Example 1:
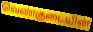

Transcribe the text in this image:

வெண்குடையின்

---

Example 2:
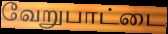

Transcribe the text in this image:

வேறுபாட்டை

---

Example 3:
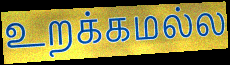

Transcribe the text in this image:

உறக்கமல்ல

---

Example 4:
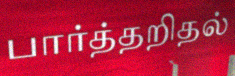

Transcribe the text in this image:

பார்த்தறிதல்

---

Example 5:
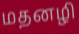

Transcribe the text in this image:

மதனழி